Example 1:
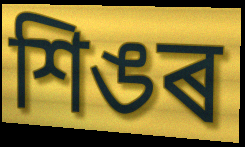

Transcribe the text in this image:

শিঙৰ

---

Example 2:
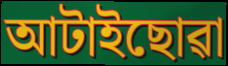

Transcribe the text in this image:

আটাইছোৱা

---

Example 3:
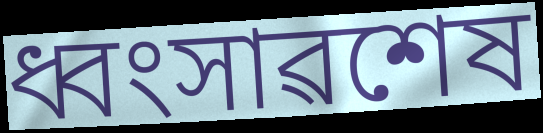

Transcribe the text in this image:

ধ্বংসাৱশেষ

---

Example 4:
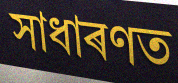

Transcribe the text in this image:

সাধাৰণত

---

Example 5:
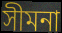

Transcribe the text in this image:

সীমনা